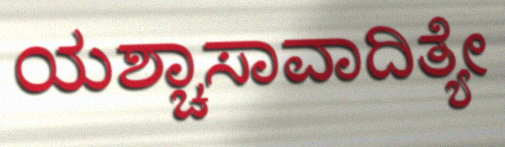
ಯಶ್ಚಾಸಾವಾದಿತ್ಯೇ